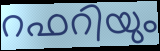
റഫറിയും